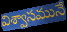
విశ్వాసమునే